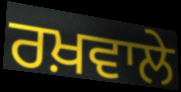
ਰਖ਼ਵਾਲੇ